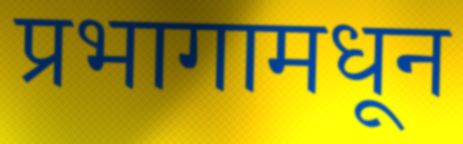
प्रभागामधून